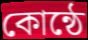
কোন্ঠে